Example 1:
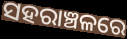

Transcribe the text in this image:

ସହରାଞ୍ଚଳରେ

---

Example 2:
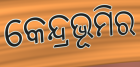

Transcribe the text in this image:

କେନ୍ଦ୍ରଭୂମିର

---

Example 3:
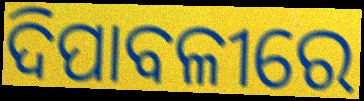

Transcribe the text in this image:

ଦିପାବଳୀରେ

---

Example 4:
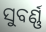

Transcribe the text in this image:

ସୁବର୍ଣ୍ଣ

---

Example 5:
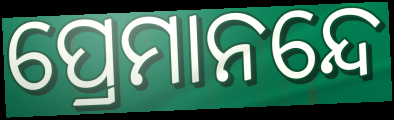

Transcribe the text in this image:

ପ୍ରେମାନନ୍ଦେ